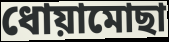
ধোয়ামোছা